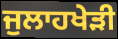
ਜੁਲਾਹਖੇੜੀ